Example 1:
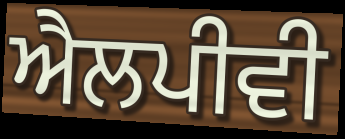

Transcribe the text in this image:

ਐਲਪੀਵੀ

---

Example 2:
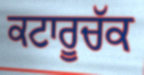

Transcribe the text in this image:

ਕਟਾਰੂਚੱਕ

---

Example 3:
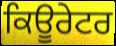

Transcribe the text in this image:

ਕਿਊਰੇਟਰ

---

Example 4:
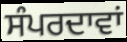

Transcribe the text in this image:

ਸੰਪਰਦਾਵਾਂ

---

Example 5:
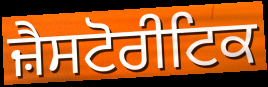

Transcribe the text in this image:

ਜ਼ੈਸਟੋਰੀਟਿਕ